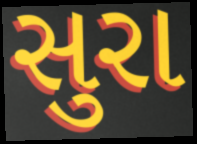
સુરા